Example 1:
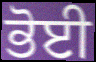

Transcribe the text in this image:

ਭੋਈ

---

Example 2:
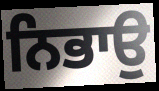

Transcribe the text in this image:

ਨਿਭਾਉ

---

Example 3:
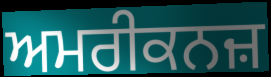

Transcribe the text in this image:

ਅਮਰੀਕਨਜ਼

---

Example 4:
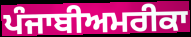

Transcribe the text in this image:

ਪੰਜਾਬੀਅਮਰੀਕਾ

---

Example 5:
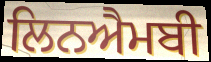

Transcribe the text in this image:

ਲਿਨਐਮਬੀ